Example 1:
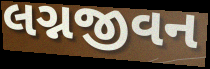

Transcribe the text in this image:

લગ્નજીવન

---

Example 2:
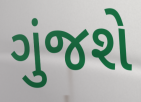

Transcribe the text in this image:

ગુંજશે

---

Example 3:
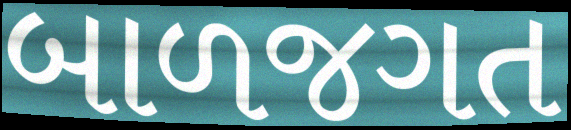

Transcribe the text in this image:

બાળજગત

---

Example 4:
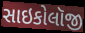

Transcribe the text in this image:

સાઇકોલૉજી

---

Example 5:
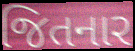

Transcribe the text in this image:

જિતનાર